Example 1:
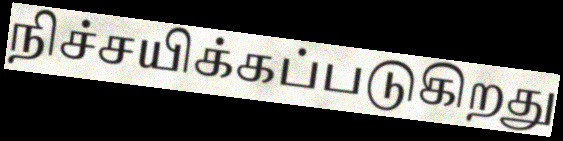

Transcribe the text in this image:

நிச்சயிக்கப்படுகிறது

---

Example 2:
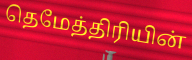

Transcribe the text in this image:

தெமேத்திரியின்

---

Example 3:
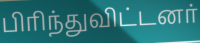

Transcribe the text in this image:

பிரிந்துவிட்டனர்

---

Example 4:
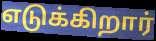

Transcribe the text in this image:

எடுக்கிறார்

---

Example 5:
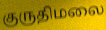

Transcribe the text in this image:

குருதிமலை